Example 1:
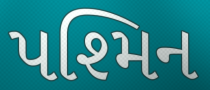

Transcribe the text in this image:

પશ્મિન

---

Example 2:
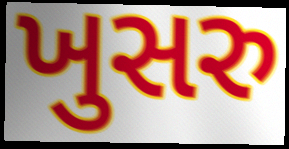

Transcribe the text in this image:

ખુસરુ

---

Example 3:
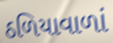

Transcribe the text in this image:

ઠળિયાવાળાં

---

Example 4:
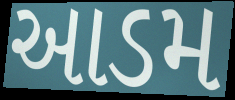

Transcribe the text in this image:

આડમ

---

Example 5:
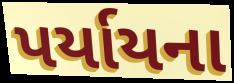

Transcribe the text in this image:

પર્યાયના